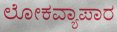
ಲೋಕವ್ಯಾಪಾರ